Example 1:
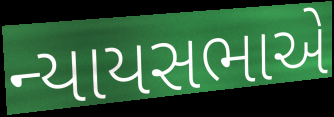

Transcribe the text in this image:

ન્યાયસભાએ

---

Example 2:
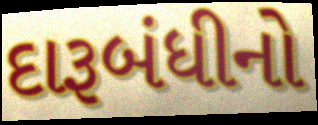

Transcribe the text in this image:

દારૂબંધીનો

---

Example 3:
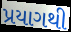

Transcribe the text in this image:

પ્રયાગથી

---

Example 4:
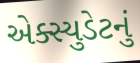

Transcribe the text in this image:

એક્સ્યુડેટનું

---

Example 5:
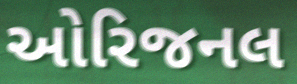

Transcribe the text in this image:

ઓરિજનલ